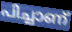
പിച്ചാണ്